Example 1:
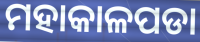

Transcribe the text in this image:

ମହାକାଳପଡା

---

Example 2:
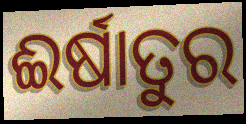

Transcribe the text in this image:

ଈର୍ଷାତୁର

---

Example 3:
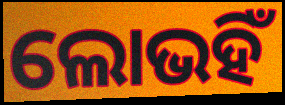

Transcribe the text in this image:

ଲୋଭହିଁ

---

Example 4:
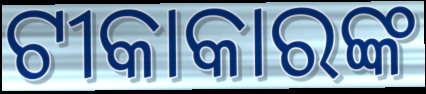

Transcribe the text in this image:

ଟୀକାକାରଙ୍କ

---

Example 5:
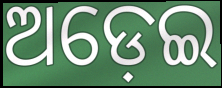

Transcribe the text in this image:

ଅଡ଼େଇ